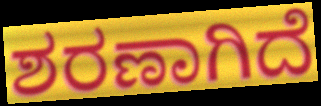
ಶರಣಾಗಿದೆ